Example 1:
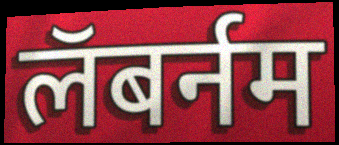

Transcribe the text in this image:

लॅबर्नम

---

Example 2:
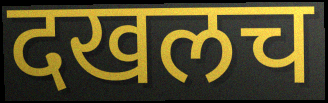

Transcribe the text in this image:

दखलच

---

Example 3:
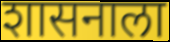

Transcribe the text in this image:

शासनाला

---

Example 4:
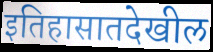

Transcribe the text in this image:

इतिहासातदेखील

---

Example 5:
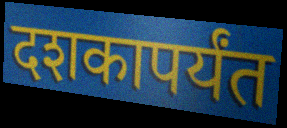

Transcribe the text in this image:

दशकापर्यंत